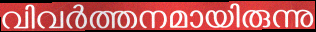
വിവർത്തനമായിരുന്നു